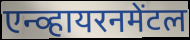
एन्व्हायरनमेंटल